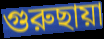
গুরুছায়া